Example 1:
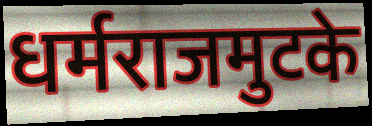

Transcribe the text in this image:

धर्मराजमुटके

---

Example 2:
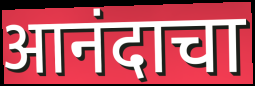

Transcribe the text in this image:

आनंदाचा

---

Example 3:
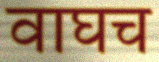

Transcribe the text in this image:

वाघच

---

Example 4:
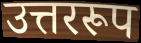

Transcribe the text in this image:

उत्तररूप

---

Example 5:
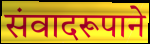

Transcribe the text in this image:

संवादरूपाने